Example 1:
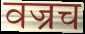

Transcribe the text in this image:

वज्रच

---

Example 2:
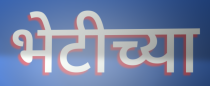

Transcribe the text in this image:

भेटीच्या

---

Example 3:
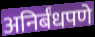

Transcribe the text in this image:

अनिर्बंधपणे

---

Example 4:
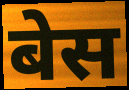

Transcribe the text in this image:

बेस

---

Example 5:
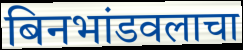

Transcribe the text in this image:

बिनभांडवलाचा